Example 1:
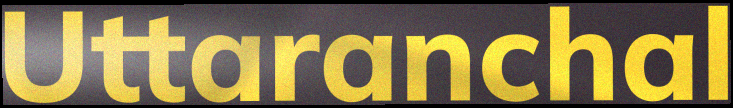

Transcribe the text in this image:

Uttaranchal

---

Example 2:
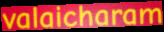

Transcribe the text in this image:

valaicharam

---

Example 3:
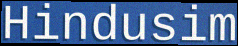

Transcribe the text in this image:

Hindusim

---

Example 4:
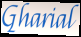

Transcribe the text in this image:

Gharial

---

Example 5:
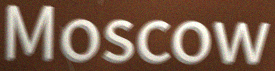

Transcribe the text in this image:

Moscow